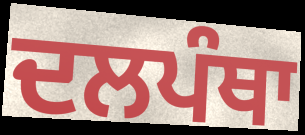
ਦਲਪੰਥਾ